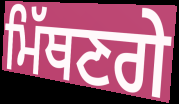
ਮਿੱਥਣਗੇ